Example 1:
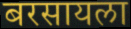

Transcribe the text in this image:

बरसायला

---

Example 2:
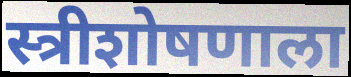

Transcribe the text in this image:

स्त्रीशोषणाला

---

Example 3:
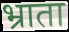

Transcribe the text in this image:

भ्राता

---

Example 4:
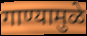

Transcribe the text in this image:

गाण्यामुळे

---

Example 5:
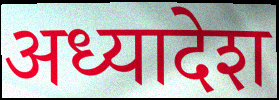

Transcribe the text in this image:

अध्यादेश